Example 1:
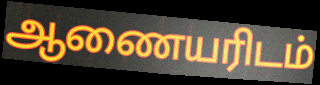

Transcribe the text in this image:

ஆணையரிடம்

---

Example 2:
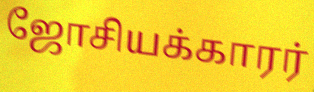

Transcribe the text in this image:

ஜோசியக்காரர்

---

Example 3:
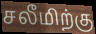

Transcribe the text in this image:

சலீமிற்கு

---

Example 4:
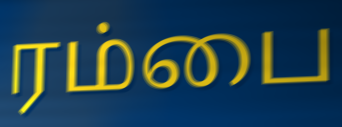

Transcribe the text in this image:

ரம்பை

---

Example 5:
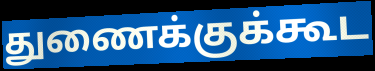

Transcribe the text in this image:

துணைக்குக்கூட